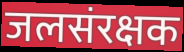
जलसंरक्षक